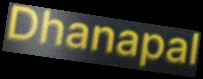
Dhanapal